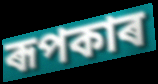
ৰূপকাৰ